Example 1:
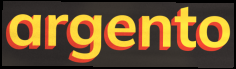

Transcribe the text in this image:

argento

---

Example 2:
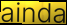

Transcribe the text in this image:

ainda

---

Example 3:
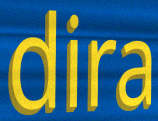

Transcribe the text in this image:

dira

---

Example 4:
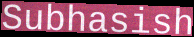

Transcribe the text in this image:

Subhasish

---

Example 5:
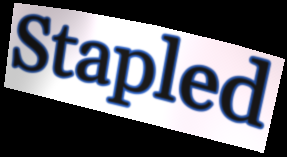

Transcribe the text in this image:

Stapled